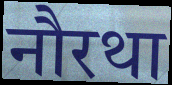
नौरथा